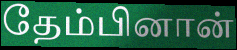
தேம்பினான்